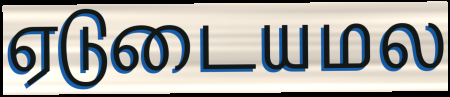
ஏடுடையமல